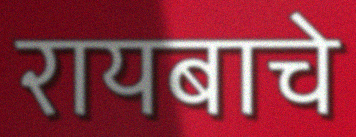
रायबाचे